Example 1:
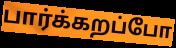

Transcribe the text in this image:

பார்க்கறப்போ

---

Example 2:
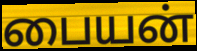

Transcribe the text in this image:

பையன்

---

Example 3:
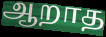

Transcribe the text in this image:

ஆறாத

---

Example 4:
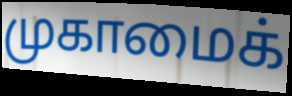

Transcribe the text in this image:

முகாமைக்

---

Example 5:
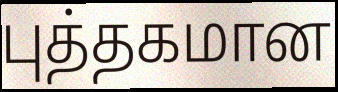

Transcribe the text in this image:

புத்தகமான